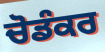
ਚੋਡੰਕਰ